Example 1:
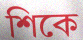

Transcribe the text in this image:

শিকে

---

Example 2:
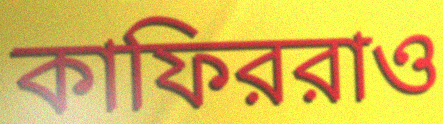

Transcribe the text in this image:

কাফিররাও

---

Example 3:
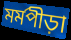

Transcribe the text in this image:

মর্মপীড়া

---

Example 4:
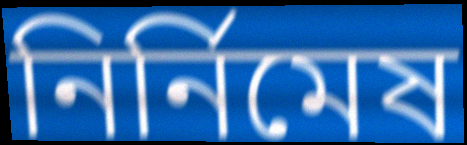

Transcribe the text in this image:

নির্নিমেষ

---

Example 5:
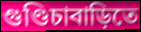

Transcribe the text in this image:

গুণ্ডিচাবাড়িতে